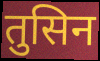
तुसिन